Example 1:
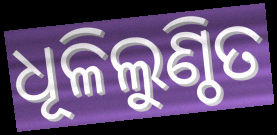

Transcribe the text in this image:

ଧୂଳିଲୁଣ୍ଠିତ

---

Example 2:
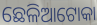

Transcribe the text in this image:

ଛେଳିଆଟୋକା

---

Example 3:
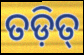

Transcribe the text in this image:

ତଡ଼ିତ୍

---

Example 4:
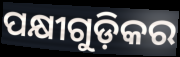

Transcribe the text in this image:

ପକ୍ଷୀଗୁଡ଼ିକର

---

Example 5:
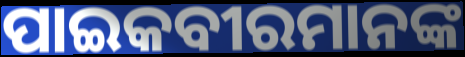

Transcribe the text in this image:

ପାଇକବୀରମାନଙ୍କ